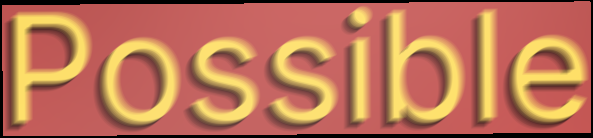
Possible